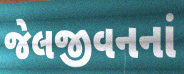
જેલજીવનનાં